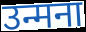
उन्मना